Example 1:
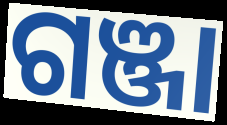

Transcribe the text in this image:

ଗଞ୍ଜା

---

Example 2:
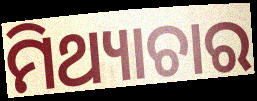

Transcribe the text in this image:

ମିଥ୍ୟାଚାର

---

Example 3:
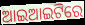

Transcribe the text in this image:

ଆଇଆଇଟିରେ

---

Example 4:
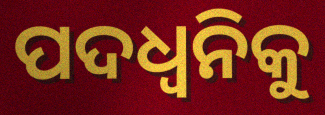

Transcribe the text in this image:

ପଦଧ୍ୱନିକୁ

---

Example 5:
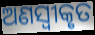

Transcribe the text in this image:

ଅଣସ୍ୱୀକୃତ